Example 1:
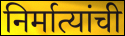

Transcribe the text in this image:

निर्मात्यांची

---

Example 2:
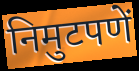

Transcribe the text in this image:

निमुटपणें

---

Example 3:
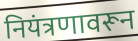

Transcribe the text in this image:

नियंत्रणावरून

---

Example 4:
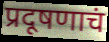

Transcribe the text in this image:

प्रदूषणाचं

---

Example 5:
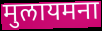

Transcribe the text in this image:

मुलायमना